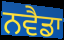
ਨਵੈਡਾ